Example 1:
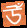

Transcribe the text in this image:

উঁ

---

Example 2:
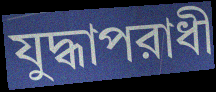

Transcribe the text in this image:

যুদ্ধাপরাধী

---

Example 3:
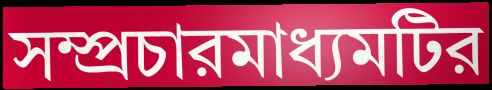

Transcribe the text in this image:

সম্প্রচারমাধ্যমটির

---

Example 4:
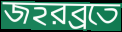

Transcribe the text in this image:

জহরব্রতে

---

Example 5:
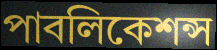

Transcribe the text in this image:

পাবলিকেশন্স